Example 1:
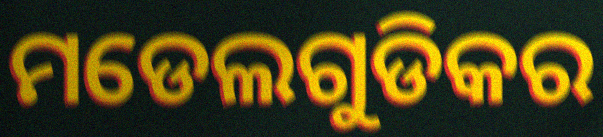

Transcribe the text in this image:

ମଡେଲଗୁଡିକର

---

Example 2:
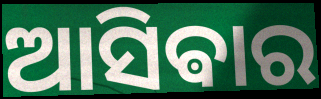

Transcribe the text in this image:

ଆସିଵାର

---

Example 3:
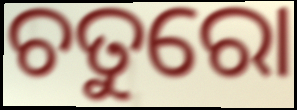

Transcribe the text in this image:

ଚତୁରୋ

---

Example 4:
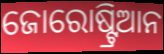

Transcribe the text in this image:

ଜୋରୋଷ୍ଟ୍ରିଆନ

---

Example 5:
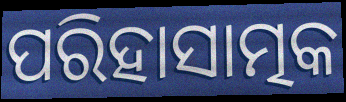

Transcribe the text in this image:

ପରିହାସାତ୍ମକ